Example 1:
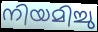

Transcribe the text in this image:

നിയമിച്ചു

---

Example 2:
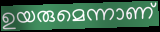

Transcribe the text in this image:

ഉയരുമെന്നാണ്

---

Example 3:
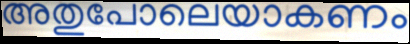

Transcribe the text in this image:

അതുപോലെയാകണം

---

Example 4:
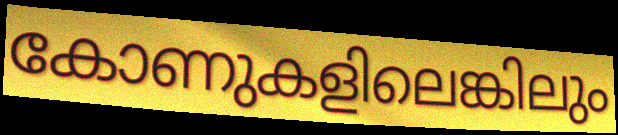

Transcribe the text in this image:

കോണുകളിലെങ്കിലും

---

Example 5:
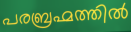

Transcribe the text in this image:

പരബ്രഹ്മത്തിൽ